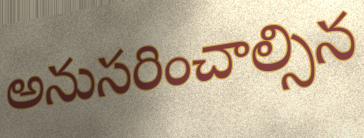
అనుసరించాల్సిన